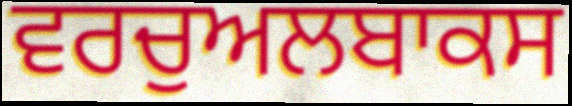
ਵਰਚੁਅਲਬਾਕਸ